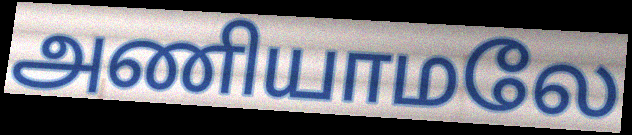
அணியாமலே